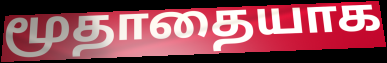
மூதாதையாக